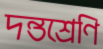
দন্তশ্রেণি